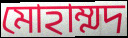
মোহাম্মদ